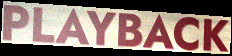
PLAYBACK